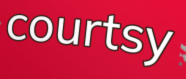
courtsy